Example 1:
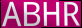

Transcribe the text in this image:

ABHR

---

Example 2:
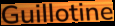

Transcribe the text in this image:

Guillotine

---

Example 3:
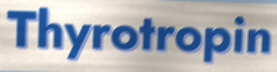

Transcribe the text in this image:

Thyrotropin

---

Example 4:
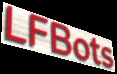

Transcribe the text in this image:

LFBots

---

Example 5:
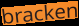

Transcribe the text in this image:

bracken